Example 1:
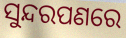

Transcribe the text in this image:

ସୁନ୍ଦରପଣରେ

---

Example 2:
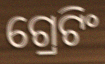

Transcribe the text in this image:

ଗ୍ରେଟିଂ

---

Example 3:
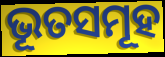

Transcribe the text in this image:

ଭୂତସମୂହ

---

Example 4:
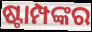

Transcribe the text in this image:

ଷ୍ଟାମ୍ପଙ୍କର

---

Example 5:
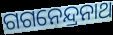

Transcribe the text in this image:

ଗଗନେନ୍ଦ୍ରନାଥ